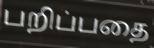
பறிப்பதை